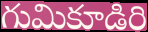
గుమికూడిరి